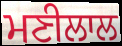
ਮਣੀਲਾਲ